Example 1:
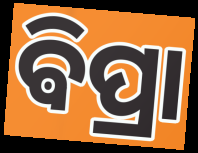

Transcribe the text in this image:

ଵିପ୍ରା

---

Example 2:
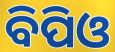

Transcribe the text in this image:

ବିପିଓ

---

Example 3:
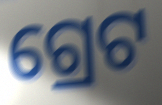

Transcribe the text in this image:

ଗ୍ରେଟ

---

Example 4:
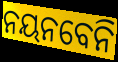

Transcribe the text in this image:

ନୟନବେନି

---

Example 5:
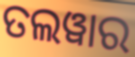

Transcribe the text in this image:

ତଲୱାର